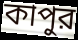
কাপুর